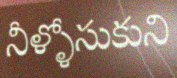
నీళ్ళోసుకుని